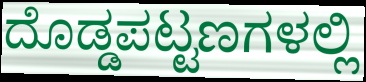
ದೊಡ್ಡಪಟ್ಟಣಗಳಲ್ಲಿ